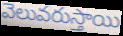
వెలువరుస్తాయి